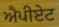
ਐਪੀਏਟ